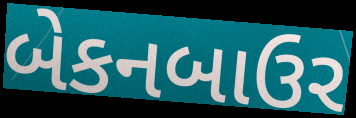
બેકનબાઉર